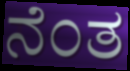
ನೆಂತ